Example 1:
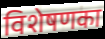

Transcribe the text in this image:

विशेषणका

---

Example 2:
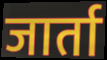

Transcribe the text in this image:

जार्ता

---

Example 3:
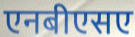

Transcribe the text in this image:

एनबीएसए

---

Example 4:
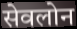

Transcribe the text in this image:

सेवलोन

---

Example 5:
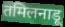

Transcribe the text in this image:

तमिलनाडू